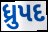
ધ્રુપદ